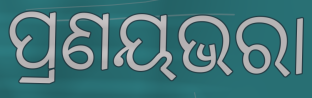
ପ୍ରଣୟଭରା